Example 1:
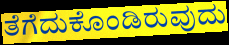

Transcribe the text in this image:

ತೆಗೆದುಕೊಂಡಿರುವುದು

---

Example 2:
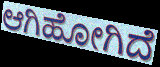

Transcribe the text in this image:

ಆಗಿಹೋಗಿದೆ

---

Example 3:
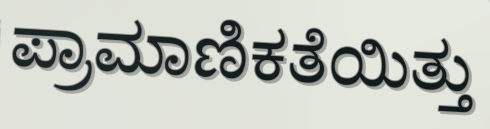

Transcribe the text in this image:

ಪ್ರಾಮಾಣಿಕತೆಯಿತ್ತು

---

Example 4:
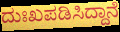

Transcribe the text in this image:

ದುಃಖಪಡಿಸಿದ್ದಾನೆ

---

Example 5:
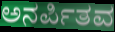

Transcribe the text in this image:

ಅನರ್ಪಿತವ